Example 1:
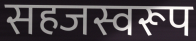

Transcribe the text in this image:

सहजस्वरूप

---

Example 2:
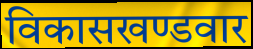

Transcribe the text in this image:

विकासखण्‍डवार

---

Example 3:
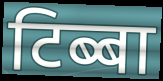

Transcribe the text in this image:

टिब्बा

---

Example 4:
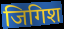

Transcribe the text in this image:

जिगिश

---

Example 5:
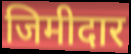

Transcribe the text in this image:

जिमीदार